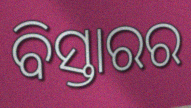
ବିସ୍ତାରର